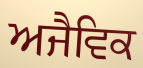
ਅਜੈਵਿਕ